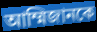
আম্মিজানকে